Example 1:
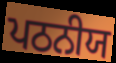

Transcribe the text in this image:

ਪਠਨੀਯ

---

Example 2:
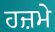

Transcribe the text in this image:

ਹਜ਼ਮੇ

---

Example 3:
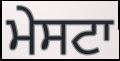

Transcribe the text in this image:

ਮੇਸਟਾ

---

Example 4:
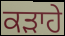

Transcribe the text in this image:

ਕੜਾਹੇ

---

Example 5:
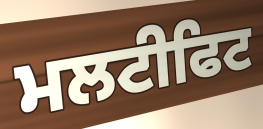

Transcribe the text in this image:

ਮਲਟੀਫਿਟ